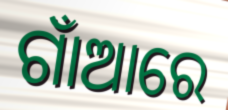
ଗାଁଆରେ